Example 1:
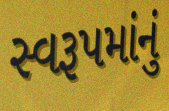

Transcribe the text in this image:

સ્વરૂપમાંનું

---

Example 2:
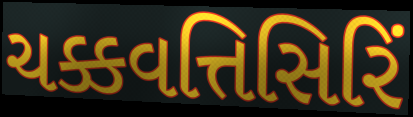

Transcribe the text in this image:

ચક્કવત્તિસિરિં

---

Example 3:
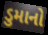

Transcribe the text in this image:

ડુમાનો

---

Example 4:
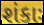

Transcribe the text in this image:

શંકાઃ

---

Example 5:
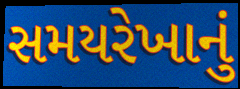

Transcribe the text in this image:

સમયરેખાનું